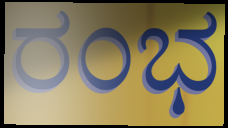
ರಂಭ